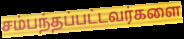
சம்பந்தப்பட்டவர்களை